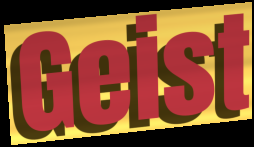
Geist